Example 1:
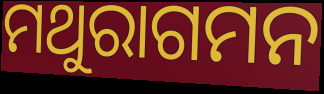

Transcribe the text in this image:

ମଥୁରାଗମନ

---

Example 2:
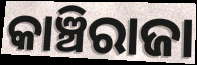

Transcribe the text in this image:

କାଞ୍ଚିରାଜା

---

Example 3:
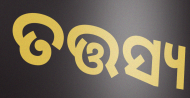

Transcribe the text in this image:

ତତ୍ତସ୍ୟ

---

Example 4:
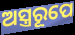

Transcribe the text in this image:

ଅସ୍ତ୍ରରୂପେ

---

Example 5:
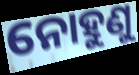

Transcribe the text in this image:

ନୋହୁଣୁ